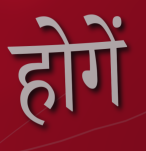
होगें